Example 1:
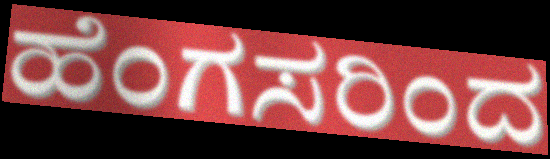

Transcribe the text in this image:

ಹೆಂಗಸರಿಂದ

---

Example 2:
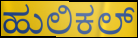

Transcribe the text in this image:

ಹುಲಿಕಲ್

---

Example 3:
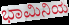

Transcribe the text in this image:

ಭಾಮಿನಿಯ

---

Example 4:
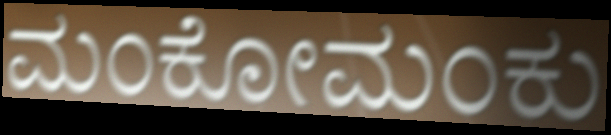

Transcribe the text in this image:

ಮಂಕೋಮಂಕು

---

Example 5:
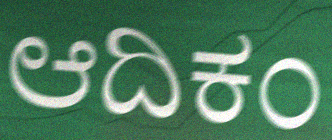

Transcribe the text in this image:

ಆದಿಕಂ